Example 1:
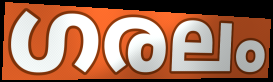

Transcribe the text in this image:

ഗരലം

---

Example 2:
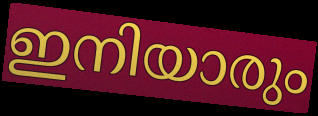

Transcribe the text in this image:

ഇനിയാരും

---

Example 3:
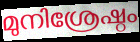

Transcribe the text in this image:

മുനിശ്രേഷ്ഠം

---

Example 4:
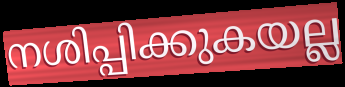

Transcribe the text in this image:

നശിപ്പിക്കുകയല്ല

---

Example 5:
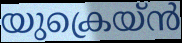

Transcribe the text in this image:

യുക്രെയ്ൻ